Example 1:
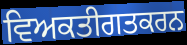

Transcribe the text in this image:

ਵਿਅਕਤੀਗਤਕਰਨ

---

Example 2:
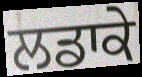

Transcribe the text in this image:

ਲਡਾਕੇ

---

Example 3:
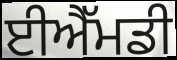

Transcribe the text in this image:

ਈਐੱਮਡੀ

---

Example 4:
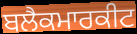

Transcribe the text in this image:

ਬਲੈਕਮਾਰਕੀਟ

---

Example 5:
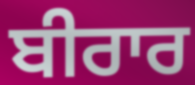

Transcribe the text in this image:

ਬੀਰਾਰ